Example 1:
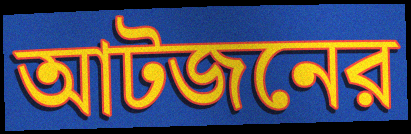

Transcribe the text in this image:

আটজনের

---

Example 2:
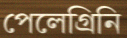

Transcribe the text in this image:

পেলেগ্রিনি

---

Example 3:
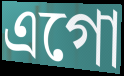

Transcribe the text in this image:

এগো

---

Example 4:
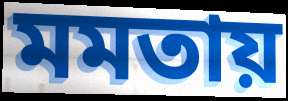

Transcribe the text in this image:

মমতায়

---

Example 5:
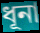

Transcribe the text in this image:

ধূনা